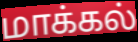
மாக்கல்